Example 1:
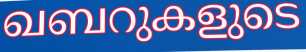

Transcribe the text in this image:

ഖബറുകളുടെ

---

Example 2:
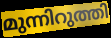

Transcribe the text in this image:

മുന്നിറുത്തി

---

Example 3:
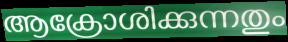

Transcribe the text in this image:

ആക്രോശിക്കുന്നതും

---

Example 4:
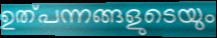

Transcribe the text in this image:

ഉത്പന്നങ്ങളുടെയും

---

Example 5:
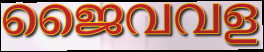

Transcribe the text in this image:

ജൈവവള